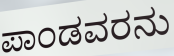
ಪಾಂಡವರನು